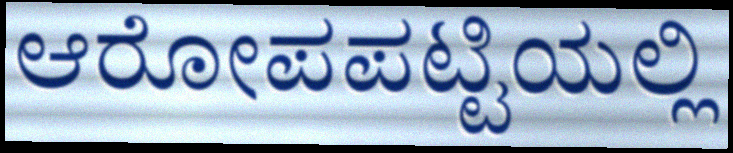
ಆರೋಪಪಟ್ಟಿಯಲ್ಲಿ